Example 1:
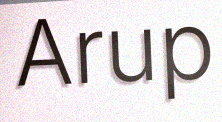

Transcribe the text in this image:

Arup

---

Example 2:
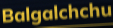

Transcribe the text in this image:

Balgalchchu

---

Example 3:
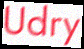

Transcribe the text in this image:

Udry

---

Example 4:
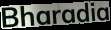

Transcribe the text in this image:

Bharadia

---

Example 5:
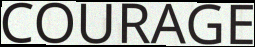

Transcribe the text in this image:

COURAGE